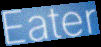
Eater